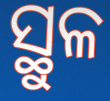
ସ୍ଥୁଳ